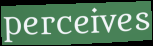
perceives